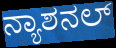
ನ್ಯಾಶನಲ್